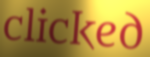
clicked